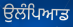
ਉਲੰਪਿਆਡ